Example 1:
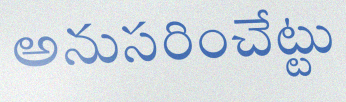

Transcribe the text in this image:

అనుసరించేట్టు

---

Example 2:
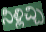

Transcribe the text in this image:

నీళ్లిచ్చి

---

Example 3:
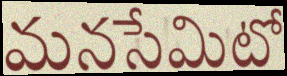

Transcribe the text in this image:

మనసేమిటో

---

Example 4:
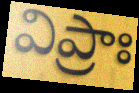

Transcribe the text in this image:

విప్రాః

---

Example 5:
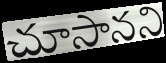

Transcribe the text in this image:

చూసానని